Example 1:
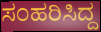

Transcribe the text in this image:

ಸಂಹರಿಸಿದ್ದ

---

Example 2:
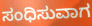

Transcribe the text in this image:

ಸಂಧಿಸುವಾಗ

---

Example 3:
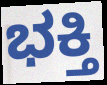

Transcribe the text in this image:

ಭಕ್ತಿ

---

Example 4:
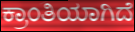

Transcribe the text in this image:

ಕ್ರಾಂತಿಯಾಗಿದೆ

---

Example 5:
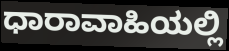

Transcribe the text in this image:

ಧಾರಾವಾಹಿಯಲ್ಲಿ